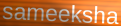
sameeksha